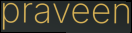
praveen